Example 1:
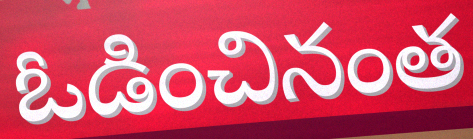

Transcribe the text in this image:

ఓడించినంత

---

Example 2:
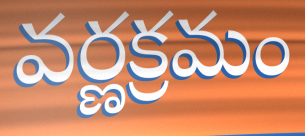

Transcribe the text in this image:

వర్ణక్రమం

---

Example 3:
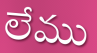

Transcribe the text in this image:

లేము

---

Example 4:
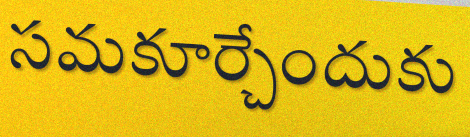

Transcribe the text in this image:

సమకూర్చేందుకు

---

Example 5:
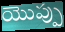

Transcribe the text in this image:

యొప్పు